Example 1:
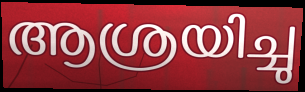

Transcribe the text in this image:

ആശ്രയിച്ചു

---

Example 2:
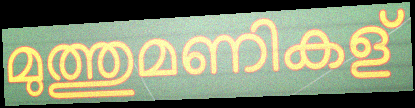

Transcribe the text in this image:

മുത്തുമണികള്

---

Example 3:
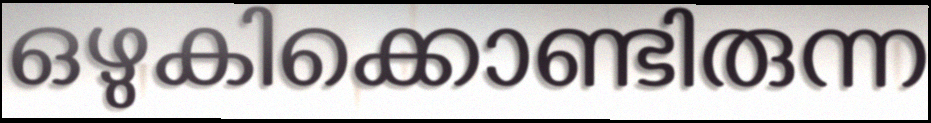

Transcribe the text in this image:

ഒഴുകിക്കൊണ്ടിരുന്ന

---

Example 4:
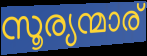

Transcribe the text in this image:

സൂര്യന്മാര്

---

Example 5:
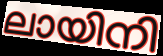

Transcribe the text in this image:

ലായിനി